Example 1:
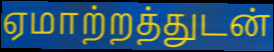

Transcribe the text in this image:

ஏமாற்றத்துடன்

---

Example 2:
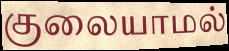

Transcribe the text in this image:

குலையாமல்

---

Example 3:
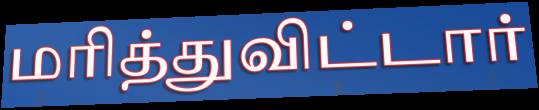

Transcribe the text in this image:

மரித்துவிட்டார்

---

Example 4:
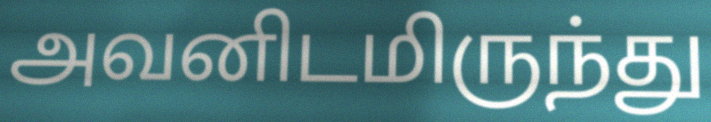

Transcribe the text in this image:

அவனிடமிருந்து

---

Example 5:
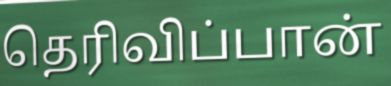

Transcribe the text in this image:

தெரிவிப்பான்